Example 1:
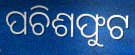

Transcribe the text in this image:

ପଚିଶଫୁଟ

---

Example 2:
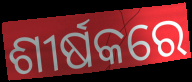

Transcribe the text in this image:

ଶୀର୍ଷକରେ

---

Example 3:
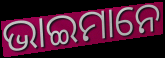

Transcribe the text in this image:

ଭାଇମାନେ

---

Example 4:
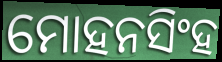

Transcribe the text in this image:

ମୋହନସିଂହ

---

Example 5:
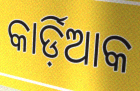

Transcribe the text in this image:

କାର୍ଡ଼ିଆକ